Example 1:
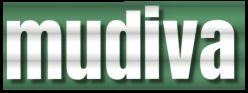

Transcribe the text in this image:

mudiva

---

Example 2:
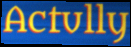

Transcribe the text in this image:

Actully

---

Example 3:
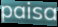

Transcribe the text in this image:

paisa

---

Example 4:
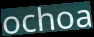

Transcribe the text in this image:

ochoa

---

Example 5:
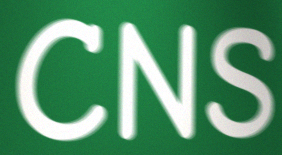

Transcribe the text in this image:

CNS